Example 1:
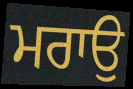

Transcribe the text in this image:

ਮਰਾਉ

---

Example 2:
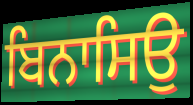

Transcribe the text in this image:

ਬਿਨਾਸਿਉ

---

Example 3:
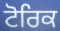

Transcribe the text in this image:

ਟੋਰਿਕ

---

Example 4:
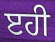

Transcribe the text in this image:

ੲਹੀ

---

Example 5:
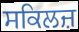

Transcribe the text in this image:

ਸਕਿਲਜ਼